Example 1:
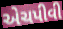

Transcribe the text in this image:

એચપીવી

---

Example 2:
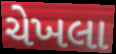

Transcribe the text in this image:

ચેખલા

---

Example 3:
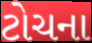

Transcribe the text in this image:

ટોચના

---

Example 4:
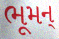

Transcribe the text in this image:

ભૂમન્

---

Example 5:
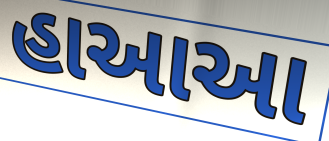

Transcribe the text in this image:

હાઆઆ